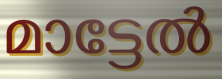
മാട്ടേൽ